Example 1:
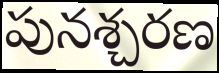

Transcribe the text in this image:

పునశ్చరణ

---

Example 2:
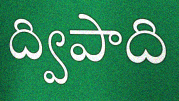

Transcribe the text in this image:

ద్విపాది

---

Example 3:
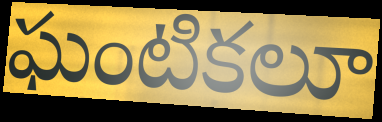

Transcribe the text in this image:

ఘంటికలూ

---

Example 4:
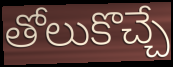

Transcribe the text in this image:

తోలుకొచ్చే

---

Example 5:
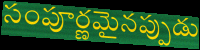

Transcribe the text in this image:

సంపూర్ణమైనప్పుడు